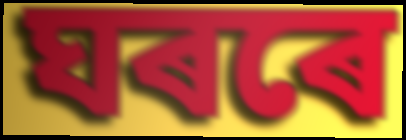
ঘৰৰে